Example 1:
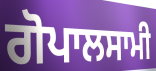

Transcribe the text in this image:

ਗੋਪਾਲਸਾਮੀ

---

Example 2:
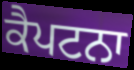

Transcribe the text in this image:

ਕੈਪਟਨਾ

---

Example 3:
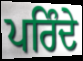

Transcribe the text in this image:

ਪਰਿੰਦੇ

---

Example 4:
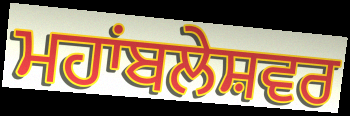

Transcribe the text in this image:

ਮਹਾਂਬਲੇਸ਼ਵਰ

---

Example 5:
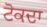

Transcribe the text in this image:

ਟੋਕਦਾ